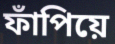
ফাঁপিয়ে